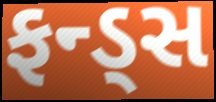
ફન્ડ્સ